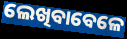
ଲେଖିବାବେଳେ